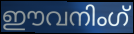
ഈവനിംഗ്